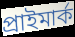
প্রাইমার্ক